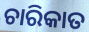
ଚାରିକାତ